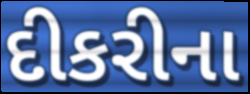
દીકરીના